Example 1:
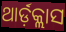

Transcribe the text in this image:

ଥାର୍ଡ଼କ୍ଲାସ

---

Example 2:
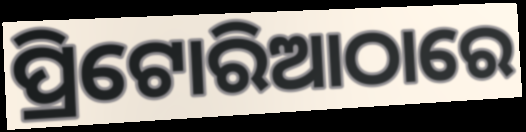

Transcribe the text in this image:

ପ୍ରିଟୋରିଆଠାରେ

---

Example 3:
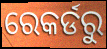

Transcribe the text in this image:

ରେକର୍ଡରୁ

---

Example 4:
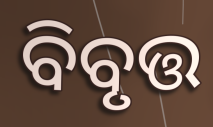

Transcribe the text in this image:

ବିବୃତ୍ତ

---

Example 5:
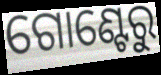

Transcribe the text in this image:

ଗୋଣ୍ଟେରୁ